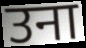
उना